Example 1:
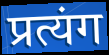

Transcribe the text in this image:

प्रत्यंग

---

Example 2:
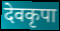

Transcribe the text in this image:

देवकृपा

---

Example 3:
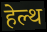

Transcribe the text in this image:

हेल्थ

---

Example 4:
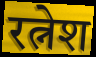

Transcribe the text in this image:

रत्नेश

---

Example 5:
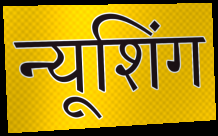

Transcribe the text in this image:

न्यूशिंग